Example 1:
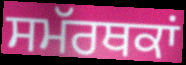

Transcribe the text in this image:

ਸਮੱਰਥਕਾਂ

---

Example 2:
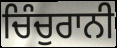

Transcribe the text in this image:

ਚਿੰਚੁਰਾਨੀ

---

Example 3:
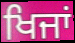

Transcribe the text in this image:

ਖਿਜਾਂ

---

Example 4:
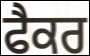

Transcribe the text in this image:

ਫੈਕਰ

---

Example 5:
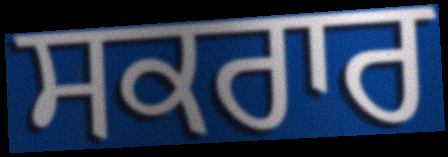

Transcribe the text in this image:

ਸਕਰਾਰ